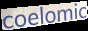
coelomic